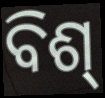
ବିଶ୍